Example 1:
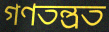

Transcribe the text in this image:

গণতন্ত্ৰত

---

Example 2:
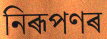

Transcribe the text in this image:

নিৰূপণৰ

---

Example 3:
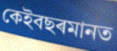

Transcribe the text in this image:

কেইবছৰমানত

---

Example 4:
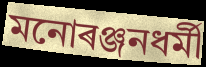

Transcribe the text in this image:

মনোৰঞ্জনধৰ্মী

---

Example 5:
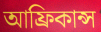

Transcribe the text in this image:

আফ্ৰিকান্স